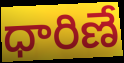
ధారిణే